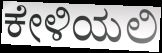
ಕೇಳಿಯಲಿ